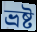
ভ্রষ্ট